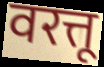
वरत्तू